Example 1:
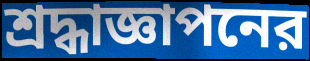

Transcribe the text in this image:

শ্রদ্ধাজ্ঞাপনের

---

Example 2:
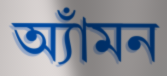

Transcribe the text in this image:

অ্যাঁমন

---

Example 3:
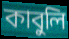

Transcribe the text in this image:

কাবুলি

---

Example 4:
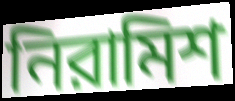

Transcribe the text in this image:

নিরামিশ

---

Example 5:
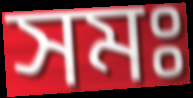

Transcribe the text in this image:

সমঃ